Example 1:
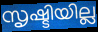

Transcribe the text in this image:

സൃഷ്ടിയില്ല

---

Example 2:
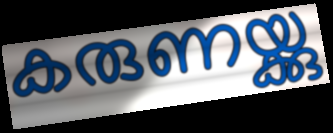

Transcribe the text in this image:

കരുണയ്ക്കു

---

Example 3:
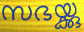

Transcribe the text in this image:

സഭയ്ക്കു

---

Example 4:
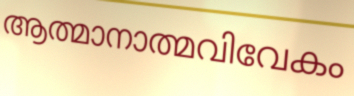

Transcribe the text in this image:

ആത്മാനാത്മവിവേകം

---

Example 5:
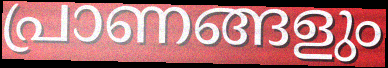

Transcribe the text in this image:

പ്രാണങ്ങളും